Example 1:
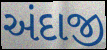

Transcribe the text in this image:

અંદાજી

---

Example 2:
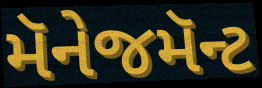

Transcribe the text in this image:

મૅનેજમૅન્ટ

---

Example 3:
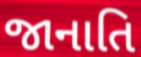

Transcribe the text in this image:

જાનાતિ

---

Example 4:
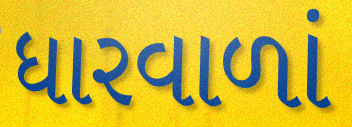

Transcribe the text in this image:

ધારવાળાં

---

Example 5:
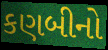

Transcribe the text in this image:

કણબીનો